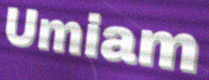
Umiam